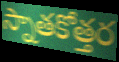
స్నాతకోత్తర